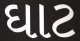
ઘાટ